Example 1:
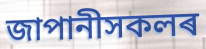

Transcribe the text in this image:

জাপানীসকলৰ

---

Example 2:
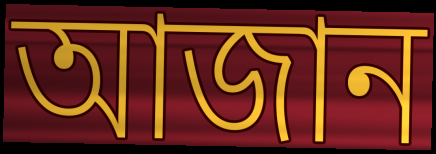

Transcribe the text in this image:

আজান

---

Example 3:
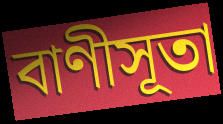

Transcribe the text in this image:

বাণীসূতা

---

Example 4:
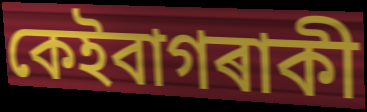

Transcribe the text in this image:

কেইবাগৰাকী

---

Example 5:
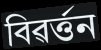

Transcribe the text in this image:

বিৱৰ্ত্তন